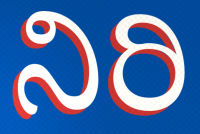
ನಿರಿ